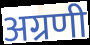
अग्रणी